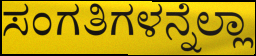
ಸಂಗತಿಗಳನ್ನೆಲ್ಲಾ